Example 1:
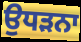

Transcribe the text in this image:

ਉਧੜਨਾ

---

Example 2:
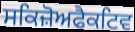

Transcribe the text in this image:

ਸਕਿਜ਼ੋਅਫੈਕਟਿਵ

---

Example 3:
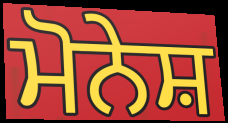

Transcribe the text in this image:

ਮੋਨੇਸ਼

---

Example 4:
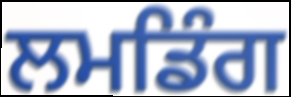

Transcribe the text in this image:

ਲਮਡਿੰਗ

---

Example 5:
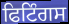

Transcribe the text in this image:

ਫਿਟਿੰਗਸ